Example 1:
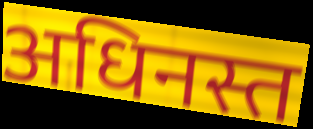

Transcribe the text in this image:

अधिनस्त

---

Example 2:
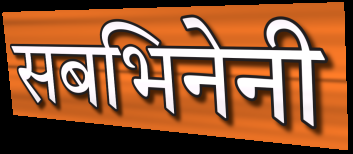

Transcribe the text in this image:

सबभिनेनी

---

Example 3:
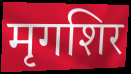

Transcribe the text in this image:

मृगशिर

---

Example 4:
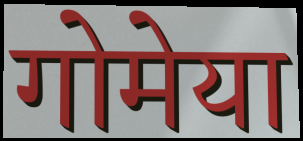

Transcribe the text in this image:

गोमेया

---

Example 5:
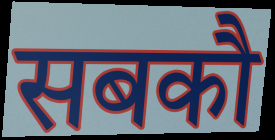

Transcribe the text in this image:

सबकौ